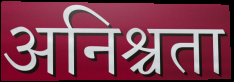
अनिश्चता